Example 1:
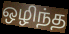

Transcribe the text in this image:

ஒழிந்த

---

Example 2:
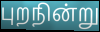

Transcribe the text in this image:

புறநின்று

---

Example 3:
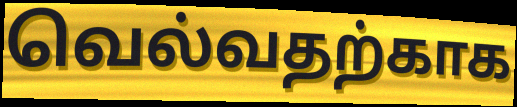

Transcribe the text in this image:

வெல்வதற்காக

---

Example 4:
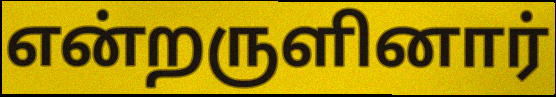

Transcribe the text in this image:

என்றருளினார்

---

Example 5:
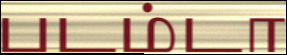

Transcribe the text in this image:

படம்டா